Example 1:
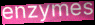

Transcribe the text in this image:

enzymes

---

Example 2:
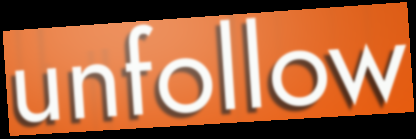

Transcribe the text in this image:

unfollow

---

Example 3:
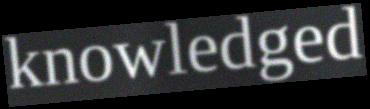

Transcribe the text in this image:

knowledged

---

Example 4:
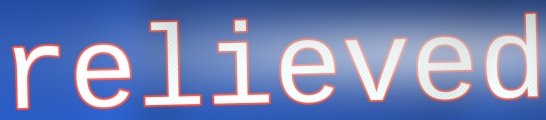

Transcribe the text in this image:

relieved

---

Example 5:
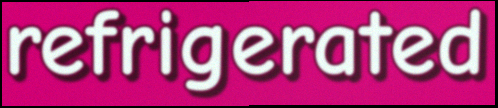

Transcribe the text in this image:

refrigerated